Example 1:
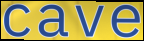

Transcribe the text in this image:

cave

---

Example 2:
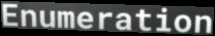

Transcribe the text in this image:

Enumeration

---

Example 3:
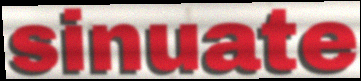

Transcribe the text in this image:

sinuate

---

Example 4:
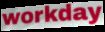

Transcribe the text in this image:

workday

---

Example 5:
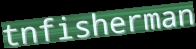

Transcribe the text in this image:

tnfisherman